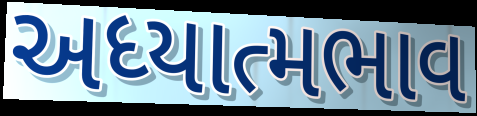
અધ્યાત્મભાવ